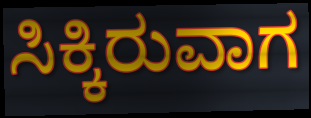
ಸಿಕ್ಕಿರುವಾಗ